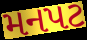
મનપટ